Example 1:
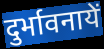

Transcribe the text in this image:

दुर्भावनायें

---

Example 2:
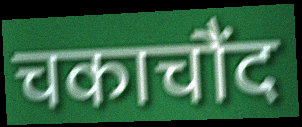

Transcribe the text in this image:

चकाचौंद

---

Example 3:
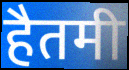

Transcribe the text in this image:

हैतमी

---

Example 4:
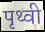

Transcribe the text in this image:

पृथ्वी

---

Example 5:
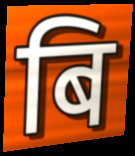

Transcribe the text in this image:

बि